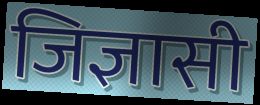
जिज्ञासी